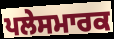
ਪਲੇਸਮਾਰਕ